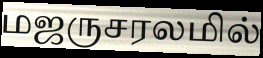
மஜருசரலமில்